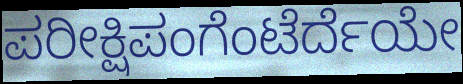
ಪರೀಕ್ಷಿಪಂಗೆಂಟೆರ್ದೆಯೇ